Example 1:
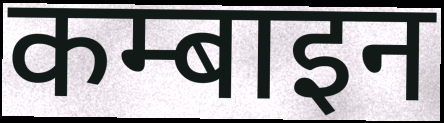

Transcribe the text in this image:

कम्बाइन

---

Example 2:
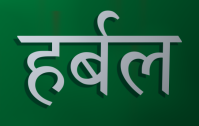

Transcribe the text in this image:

हर्बल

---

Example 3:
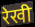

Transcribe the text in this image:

रेखी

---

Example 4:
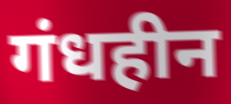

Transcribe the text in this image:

गंधहीन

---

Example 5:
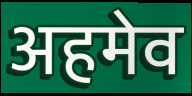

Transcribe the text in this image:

अहमेव